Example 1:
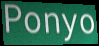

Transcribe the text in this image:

Ponyo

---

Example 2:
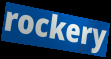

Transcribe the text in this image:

rockery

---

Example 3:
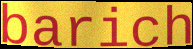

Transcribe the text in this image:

barich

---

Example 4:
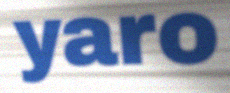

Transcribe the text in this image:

yaro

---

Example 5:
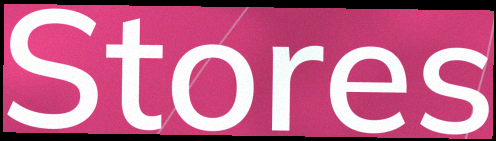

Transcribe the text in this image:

Stores